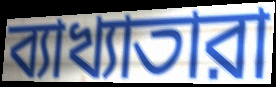
ব্যাখ্যাতারা